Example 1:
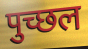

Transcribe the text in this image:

पुच्छल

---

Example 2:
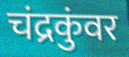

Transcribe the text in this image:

चंद्रकुंवर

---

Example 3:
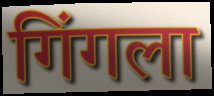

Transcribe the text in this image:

गिंगला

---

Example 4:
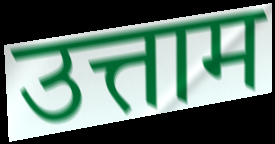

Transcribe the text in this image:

उत्ताम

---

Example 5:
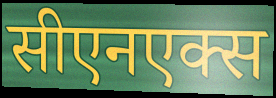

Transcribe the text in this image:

सीएनएक्स